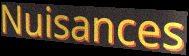
Nuisances